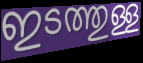
ഇടത്തുള്ള